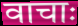
वाचाः